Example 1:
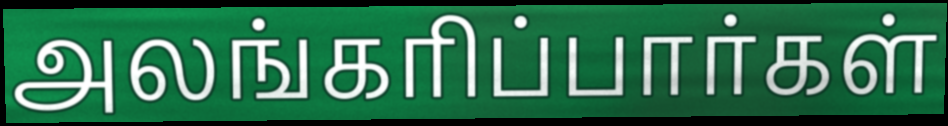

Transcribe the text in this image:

அலங்கரிப்பார்கள்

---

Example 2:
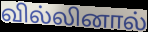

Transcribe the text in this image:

வில்லினால்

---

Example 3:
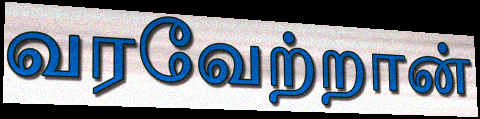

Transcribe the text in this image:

வரவேற்றான்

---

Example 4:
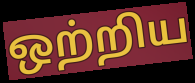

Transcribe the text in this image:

ஒற்றிய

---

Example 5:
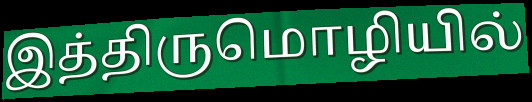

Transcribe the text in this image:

இத்திருமொழியில்